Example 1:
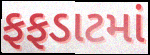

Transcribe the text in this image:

ફફડાટમાં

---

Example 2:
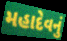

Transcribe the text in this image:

મહાદેવનું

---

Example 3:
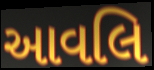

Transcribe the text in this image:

આવલિ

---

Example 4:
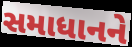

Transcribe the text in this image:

સમાધાનને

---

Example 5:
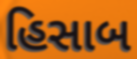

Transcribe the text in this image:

હિસાબ